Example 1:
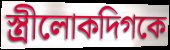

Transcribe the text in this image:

স্ত্রীলোকদিগকে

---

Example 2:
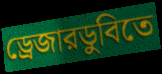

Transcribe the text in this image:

ড্রেজারডুবিতে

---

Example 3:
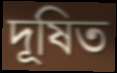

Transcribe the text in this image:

দূষিত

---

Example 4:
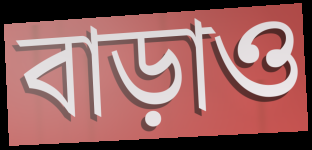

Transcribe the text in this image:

বাড়াও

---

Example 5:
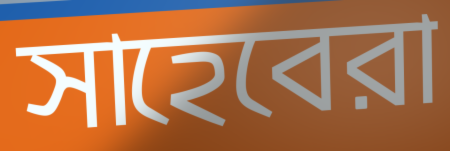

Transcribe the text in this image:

সাহেবেরা